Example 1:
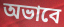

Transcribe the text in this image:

অভাবে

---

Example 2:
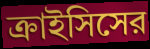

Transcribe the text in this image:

ক্রাইসিসের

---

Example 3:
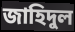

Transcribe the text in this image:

জাহিদুল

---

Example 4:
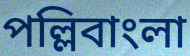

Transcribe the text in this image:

পল্লিবাংলা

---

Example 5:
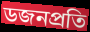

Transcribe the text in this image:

ডজনপ্রতি